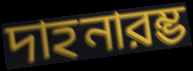
দাহনারম্ভ